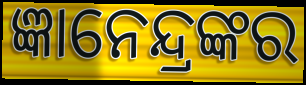
ଜ୍ଞାନେନ୍ଦ୍ରଙ୍କର